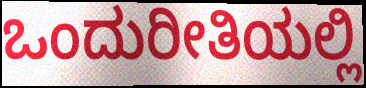
ಒಂದುರೀತಿಯಲ್ಲಿ